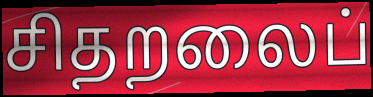
சிதறலைப்